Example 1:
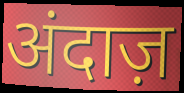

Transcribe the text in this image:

अंदाज़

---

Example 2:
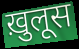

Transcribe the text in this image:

ख़ुलूस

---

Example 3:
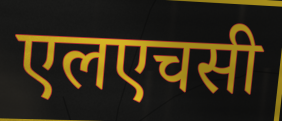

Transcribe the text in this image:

एलएचसी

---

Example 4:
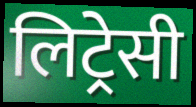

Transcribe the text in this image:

लिट्रेसी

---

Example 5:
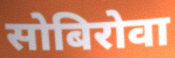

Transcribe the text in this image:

सोबिरोवा